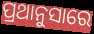
ପ୍ରଥାନୁସାରେ